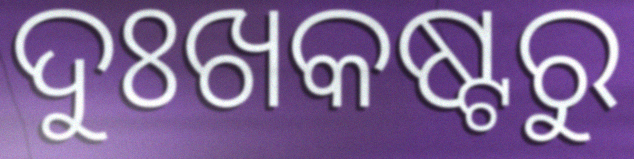
ଦୁଃଖକଷ୍ଟରୁ